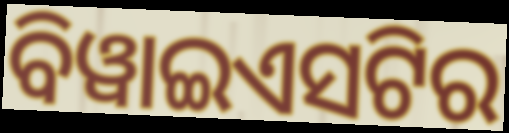
ବିୱାଇଏସଟିର